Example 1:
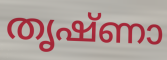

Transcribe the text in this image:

തൃഷ്ണാ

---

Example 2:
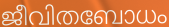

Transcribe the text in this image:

ജീവിതബോധം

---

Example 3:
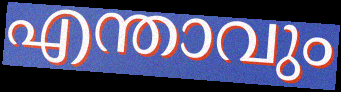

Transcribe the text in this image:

എന്താവും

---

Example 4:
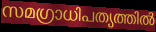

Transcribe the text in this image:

സമഗ്രാധിപത്യത്തിൽ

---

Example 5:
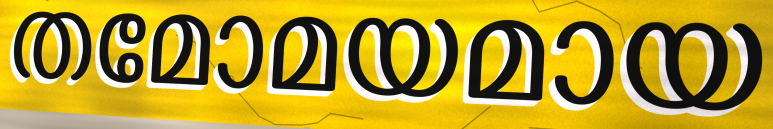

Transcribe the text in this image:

തമോമയമായ